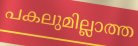
പകലുമില്ലാത്ത